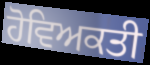
ਹੋਵਿਅਕਤੀ